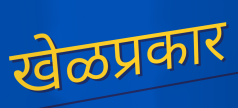
खेळप्रकार